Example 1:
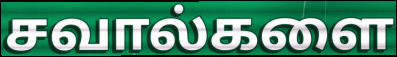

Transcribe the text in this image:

சவால்களை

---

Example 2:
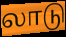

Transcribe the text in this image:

லாடு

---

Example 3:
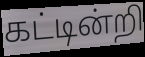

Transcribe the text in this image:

கட்டின்றி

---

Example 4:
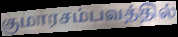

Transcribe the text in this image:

குமாரசம்பவத்தில்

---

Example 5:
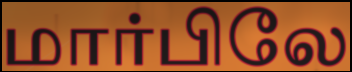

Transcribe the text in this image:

மார்பிலே